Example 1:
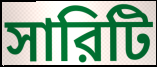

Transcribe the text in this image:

সারিটি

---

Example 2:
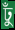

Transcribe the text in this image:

ঢুঁ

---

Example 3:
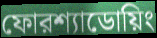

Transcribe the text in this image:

ফোরশ্যাডোয়িং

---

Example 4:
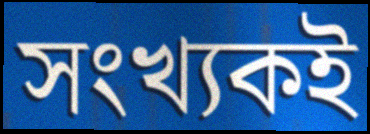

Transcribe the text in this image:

সংখ্যকই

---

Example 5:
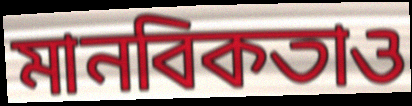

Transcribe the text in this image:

মানবিকতাও